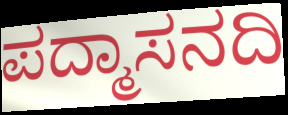
ಪದ್ಮಾಸನದಿ